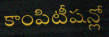
కాంపిటీషన్లో